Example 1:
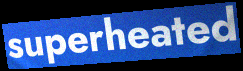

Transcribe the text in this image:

superheated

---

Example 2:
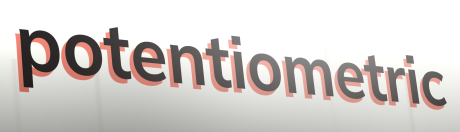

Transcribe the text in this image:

potentiometric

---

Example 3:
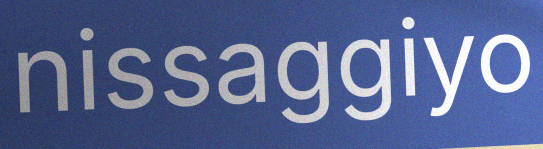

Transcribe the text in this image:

nissaggiyo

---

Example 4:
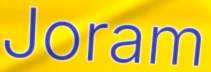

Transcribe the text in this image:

Joram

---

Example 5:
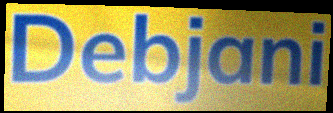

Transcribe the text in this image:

Debjani